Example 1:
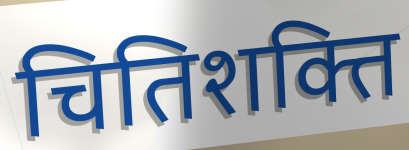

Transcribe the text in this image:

चितिशक्ति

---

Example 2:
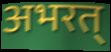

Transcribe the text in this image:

अभरत्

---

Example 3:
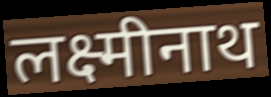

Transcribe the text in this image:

लक्ष्मीनाथ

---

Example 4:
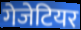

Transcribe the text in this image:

गेजेटियर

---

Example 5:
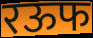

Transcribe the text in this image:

रऊफ